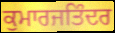
ਕੁਮਾਰਜਤਿੰਦਰ